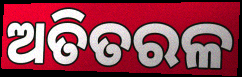
ଅତିତରଳ